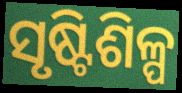
ସୃଷ୍ଟିଶିଳ୍ପ